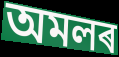
অমলৰ